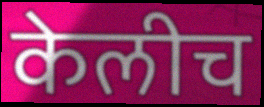
केलीच